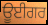
ਊਈਗਰ